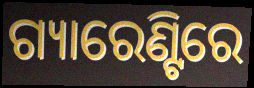
ଗ୍ୟାରେଣ୍ଟିରେ